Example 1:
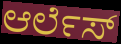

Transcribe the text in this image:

ಆರ್ಲೆಸ್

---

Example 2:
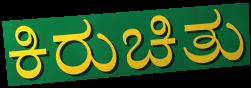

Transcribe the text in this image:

ಕಿರುಚಿತು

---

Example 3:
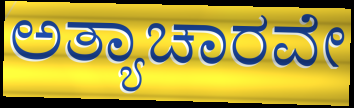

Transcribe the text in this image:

ಅತ್ಯಾಚಾರವೇ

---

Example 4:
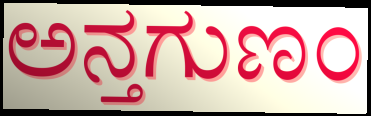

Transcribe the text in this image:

ಅನ್ತಗುಣಂ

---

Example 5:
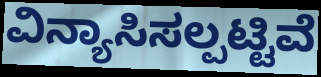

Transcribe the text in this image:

ವಿನ್ಯಾಸಿಸಲ್ಪಟ್ಟಿವೆ